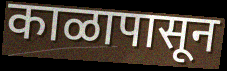
काळापासून